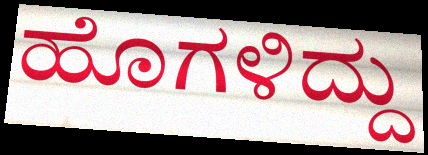
ಹೊಗಳಿದ್ದು